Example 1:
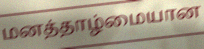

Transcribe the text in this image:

மனத்தாழ்மையான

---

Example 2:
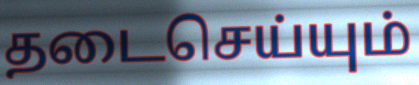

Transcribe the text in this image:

தடைசெய்யும்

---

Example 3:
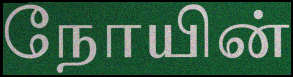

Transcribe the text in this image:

நோயின்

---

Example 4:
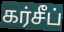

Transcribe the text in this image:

கர்சீப்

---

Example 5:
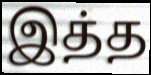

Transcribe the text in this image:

இத்த